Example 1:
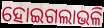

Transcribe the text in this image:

ହୋଇଗଲାଭଳି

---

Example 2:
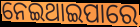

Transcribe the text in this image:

ନେଇଥାଇପାରେ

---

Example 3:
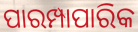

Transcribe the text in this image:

ପାରମ୍ପାପାରିକ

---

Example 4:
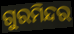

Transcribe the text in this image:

ଗୁରମିନ୍ଦର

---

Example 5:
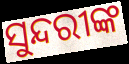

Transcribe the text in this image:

ସୁନ୍ଦରୀଙ୍କ